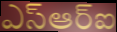
ఎస్ఆర్ఐ